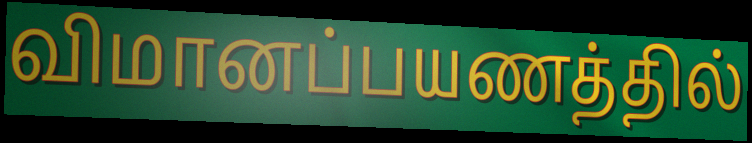
விமானப்பயணத்தில்